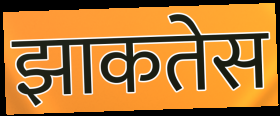
झाकतेस